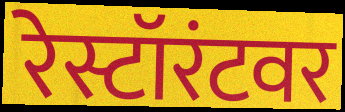
रेस्टॉरंटवर